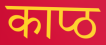
काप्ठ